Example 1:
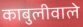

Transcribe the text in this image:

काबुलीवाले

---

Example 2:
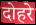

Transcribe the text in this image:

दोहरे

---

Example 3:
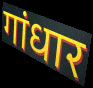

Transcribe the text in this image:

गांधार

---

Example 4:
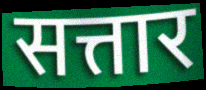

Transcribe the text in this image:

सत्तार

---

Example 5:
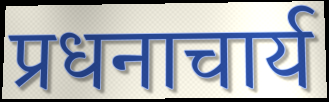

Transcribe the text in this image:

प्रधनाचार्य